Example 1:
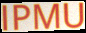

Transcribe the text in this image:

IPMU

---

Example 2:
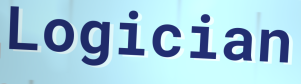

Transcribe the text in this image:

Logician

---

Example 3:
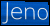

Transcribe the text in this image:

Jeno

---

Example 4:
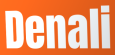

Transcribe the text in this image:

Denali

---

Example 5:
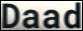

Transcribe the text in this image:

Daad